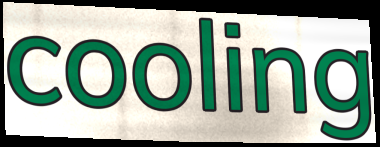
cooling